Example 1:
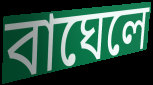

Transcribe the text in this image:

বাঘেলে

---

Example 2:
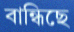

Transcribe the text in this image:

বান্ধিছে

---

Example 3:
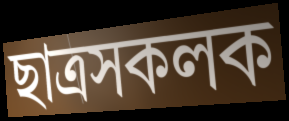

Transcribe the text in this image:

ছাত্ৰসকলক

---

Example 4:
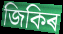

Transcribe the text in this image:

জিকিৰ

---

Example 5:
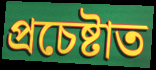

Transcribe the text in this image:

প্ৰচেষ্টাত